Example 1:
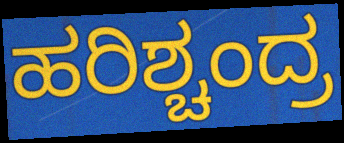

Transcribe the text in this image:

ಹರಿಶ್ಚಂದ್ರ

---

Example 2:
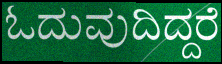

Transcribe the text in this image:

ಓದುವುದಿದ್ದರೆ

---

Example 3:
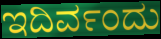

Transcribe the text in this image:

ಇದಿರ್ವಂದು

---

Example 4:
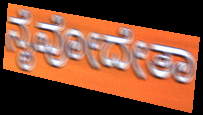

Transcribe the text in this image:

ನೈವೋದೇತಾ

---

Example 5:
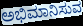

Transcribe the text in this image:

ಅಭಿಮಾನಿಸುವ